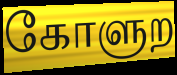
கோளுற